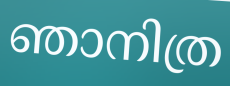
ഞാനിത്ര